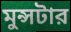
মুন্সটার